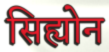
सिह्योन